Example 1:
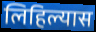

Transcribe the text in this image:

लिहिल्यास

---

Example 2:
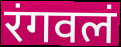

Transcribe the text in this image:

रंगवलं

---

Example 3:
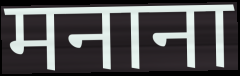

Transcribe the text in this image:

मनाना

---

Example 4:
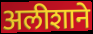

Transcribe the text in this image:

अलीशाने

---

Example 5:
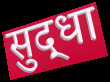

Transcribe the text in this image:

सुद्धा